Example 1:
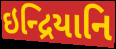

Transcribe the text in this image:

ઇન્દ્રિયાનિ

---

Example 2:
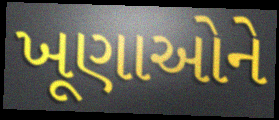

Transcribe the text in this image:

ખૂણાઓને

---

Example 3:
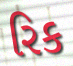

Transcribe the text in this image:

રિક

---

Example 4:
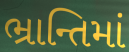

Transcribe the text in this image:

ભ્રાન્તિમાં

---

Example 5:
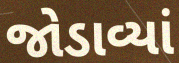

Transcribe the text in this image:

જોડાવ્યાં